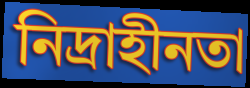
নিদ্ৰাহীনতা